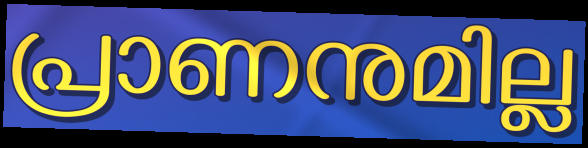
പ്രാണനുമില്ല